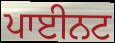
ਪਾਈਨਟ